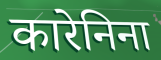
कारेनिना